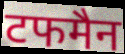
टफमैन